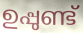
ഉപ്പുണ്ട്